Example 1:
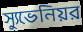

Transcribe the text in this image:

স্যুভেনিয়র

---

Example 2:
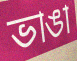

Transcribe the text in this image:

ভাঙা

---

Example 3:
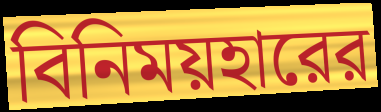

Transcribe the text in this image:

বিনিময়হারের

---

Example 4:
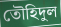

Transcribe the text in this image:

তৌহিদুল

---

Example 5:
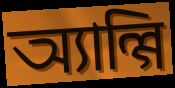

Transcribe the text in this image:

অ্যাল্গি